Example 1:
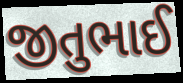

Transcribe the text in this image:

જીતુભાઈ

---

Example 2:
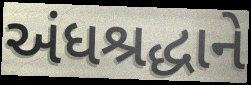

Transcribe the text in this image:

અંધશ્રદ્ધાને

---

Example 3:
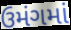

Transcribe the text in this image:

ઉમંગમાં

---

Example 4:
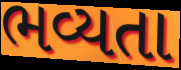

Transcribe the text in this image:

ભવ્યતા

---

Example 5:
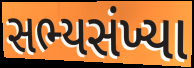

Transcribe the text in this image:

સભ્યસંખ્યા